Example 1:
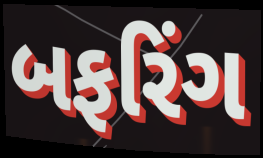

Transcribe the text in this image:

બફરિંગ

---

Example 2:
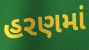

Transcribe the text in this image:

હરણમાં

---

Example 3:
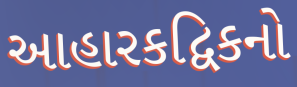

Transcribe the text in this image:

આહારકદ્વિકનો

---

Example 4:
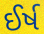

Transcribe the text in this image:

ઈર્ષ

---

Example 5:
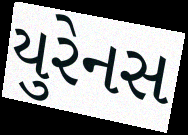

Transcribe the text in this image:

યુરેનસ